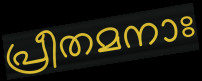
പ്രീതമനാഃ